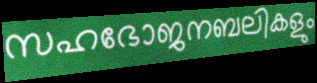
സഹഭോജനബലികളും